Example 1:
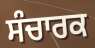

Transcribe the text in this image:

ਸੰਚਾਰਕ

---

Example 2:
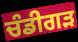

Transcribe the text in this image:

ਚੰਡੀਗੜ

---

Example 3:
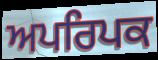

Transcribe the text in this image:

ਅਪਰਿਪਕ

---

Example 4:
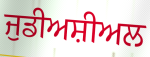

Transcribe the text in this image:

ਜੁਡੀਅਸ਼ੀਅਲ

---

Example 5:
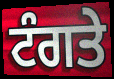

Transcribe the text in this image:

ਟੰਗਤੇ